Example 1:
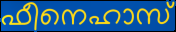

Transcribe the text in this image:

ഫീനെഹാസ്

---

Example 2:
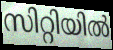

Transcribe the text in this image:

സിറ്റിയിൽ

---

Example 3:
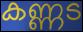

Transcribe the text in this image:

കണ്ണട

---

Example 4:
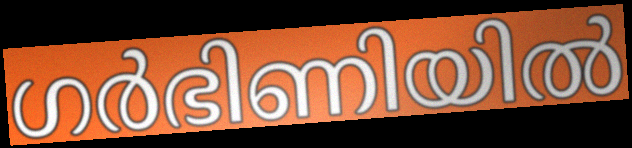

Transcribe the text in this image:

ഗർഭിണിയിൽ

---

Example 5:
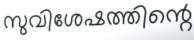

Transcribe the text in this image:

സുവിശേഷത്തിന്റെ